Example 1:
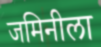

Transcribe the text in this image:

जमिनीला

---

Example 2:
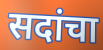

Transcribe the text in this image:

सदांचा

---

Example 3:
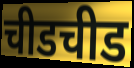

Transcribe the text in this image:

चीडचीड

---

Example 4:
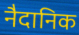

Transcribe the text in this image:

नैदानिक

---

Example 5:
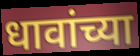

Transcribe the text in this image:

धावांच्या